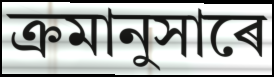
ক্ৰমানুসাৰে